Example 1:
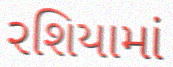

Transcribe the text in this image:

રશિયામાં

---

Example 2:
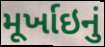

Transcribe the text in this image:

મૂર્ખાઇનું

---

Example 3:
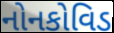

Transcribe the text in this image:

નોનકોવિડ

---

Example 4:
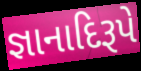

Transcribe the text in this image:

જ્ઞાનાદિરૂપે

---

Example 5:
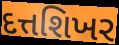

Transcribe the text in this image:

દત્તશિખર